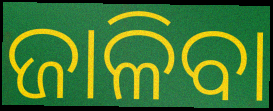
ଜାଳିବା